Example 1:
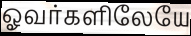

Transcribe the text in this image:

ஓவர்களிலேயே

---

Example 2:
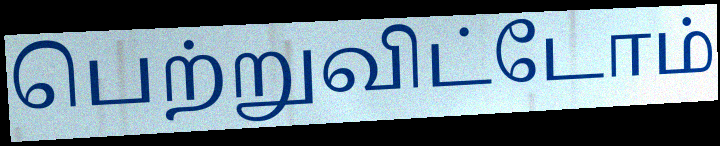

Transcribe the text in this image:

பெற்றுவிட்டோம்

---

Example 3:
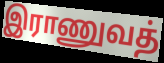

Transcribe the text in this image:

இராணுவத்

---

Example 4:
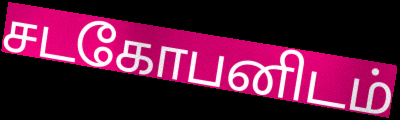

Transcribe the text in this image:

சடகோபனிடம்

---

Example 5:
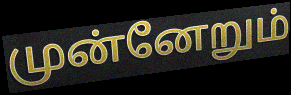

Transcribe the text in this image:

முன்னேறும்